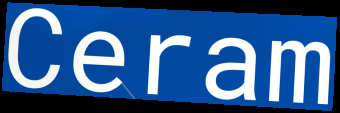
Ceram